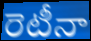
రెటీనా